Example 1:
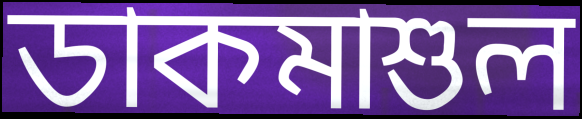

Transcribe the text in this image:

ডাকমাশুল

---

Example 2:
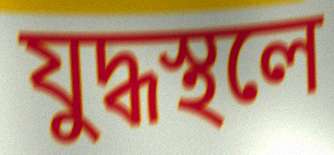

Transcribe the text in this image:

যুদ্ধস্থলে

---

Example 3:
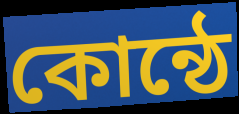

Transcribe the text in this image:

কোন্ঠে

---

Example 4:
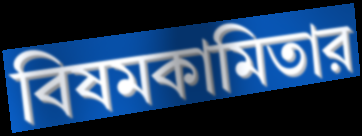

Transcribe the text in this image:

বিষমকামিতার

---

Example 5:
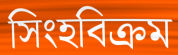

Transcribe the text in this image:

সিংহবিক্রম